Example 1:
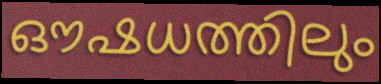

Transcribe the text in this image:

ഔഷധത്തിലും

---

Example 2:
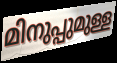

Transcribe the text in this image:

മിനുപ്പുമുള്ള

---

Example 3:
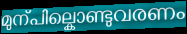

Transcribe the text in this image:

മുന്പില്കൊണ്ടുവരണം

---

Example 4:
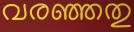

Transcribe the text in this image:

വരഞ്ഞതു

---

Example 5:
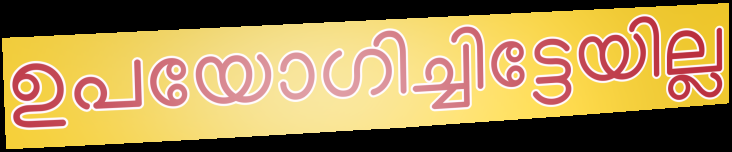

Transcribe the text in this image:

ഉപയോഗിച്ചിട്ടേയില്ല